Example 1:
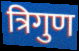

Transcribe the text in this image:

त्रिगुण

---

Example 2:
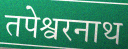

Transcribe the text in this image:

तपेश्वरनाथ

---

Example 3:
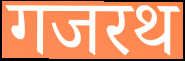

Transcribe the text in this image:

गजरथ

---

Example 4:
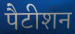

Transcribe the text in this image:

पैटीशन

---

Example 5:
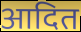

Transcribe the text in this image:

आदित